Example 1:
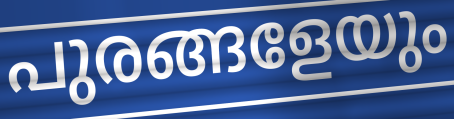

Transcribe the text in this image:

പുരങ്ങളേയും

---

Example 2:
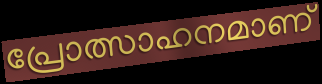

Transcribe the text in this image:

പ്രോത്സാഹനമാണ്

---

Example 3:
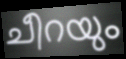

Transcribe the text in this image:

ചീറയും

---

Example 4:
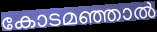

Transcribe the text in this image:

കോടമഞ്ഞാൽ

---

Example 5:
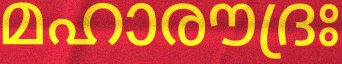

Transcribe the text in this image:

മഹാരൗദ്രഃ